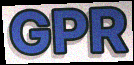
GPR